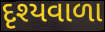
દૃશ્યવાળા